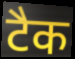
टैक